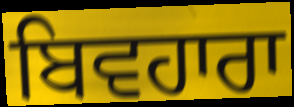
ਬਿਵਹਾਰਾ